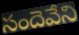
సందెవేని